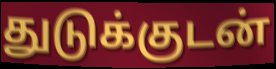
துடுக்குடன்